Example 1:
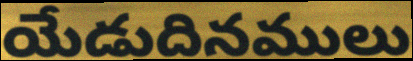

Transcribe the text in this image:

యేడుదినములు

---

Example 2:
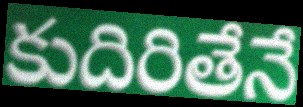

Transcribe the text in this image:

కుదిరితేనే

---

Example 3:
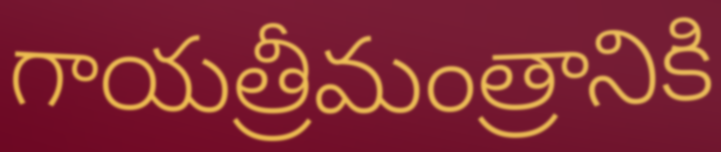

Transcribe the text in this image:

గాయత్రీమంత్రానికి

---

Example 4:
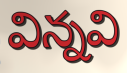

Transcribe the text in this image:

విన్నవి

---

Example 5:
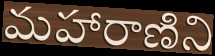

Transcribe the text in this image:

మహారాణిని